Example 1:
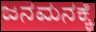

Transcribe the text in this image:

ಜನಮನಕ್ಕೆ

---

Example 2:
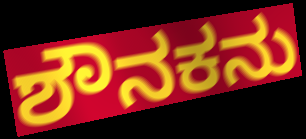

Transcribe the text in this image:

ಶೌನಕನು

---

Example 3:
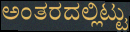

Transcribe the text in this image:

ಅಂತರದಲ್ಲಿಟ್ಟು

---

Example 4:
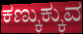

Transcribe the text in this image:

ಕಣ್ಕುಕ್ಕುವ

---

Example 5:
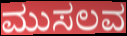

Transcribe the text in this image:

ಮುಸಲವ